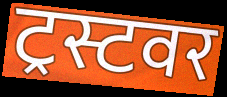
ट्रस्टवर